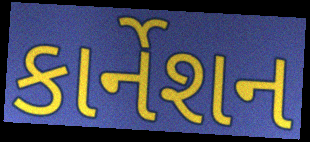
કાર્નેશન